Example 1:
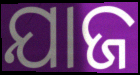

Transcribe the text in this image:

ଯାଜ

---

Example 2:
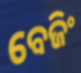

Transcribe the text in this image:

ବେଜିଂ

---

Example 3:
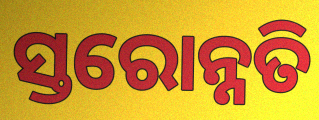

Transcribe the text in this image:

ସ୍ତରୋନ୍ନତି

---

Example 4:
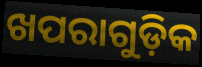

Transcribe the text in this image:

ଖପରାଗୁଡ଼ିକ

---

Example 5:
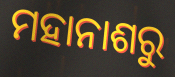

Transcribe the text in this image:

ମହାନାଶରୁ